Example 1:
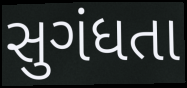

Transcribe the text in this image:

સુગંધતા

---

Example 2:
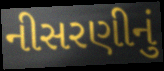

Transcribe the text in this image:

નીસરણીનું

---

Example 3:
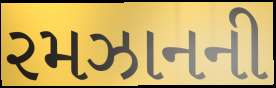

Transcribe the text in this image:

રમઝાનની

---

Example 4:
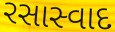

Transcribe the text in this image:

રસાસ્વાદ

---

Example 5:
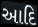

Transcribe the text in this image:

આદિ